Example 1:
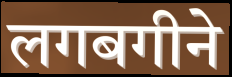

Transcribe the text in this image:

लगबगीने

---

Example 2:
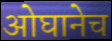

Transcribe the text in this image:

ओघानेच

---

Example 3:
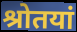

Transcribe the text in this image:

श्रोतयां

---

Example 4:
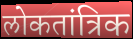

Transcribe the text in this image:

लोकतांत्रिक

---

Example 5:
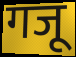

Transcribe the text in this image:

गजू